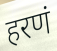
हरणं